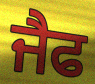
ਜੈਫ